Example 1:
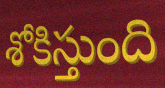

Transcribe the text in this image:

శోకిస్తుంది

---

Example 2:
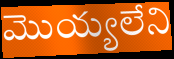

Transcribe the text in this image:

మొయ్యలేని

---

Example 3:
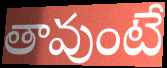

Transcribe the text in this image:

తావుంటే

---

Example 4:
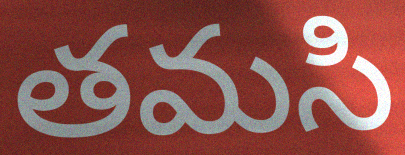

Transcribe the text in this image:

తమసి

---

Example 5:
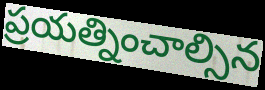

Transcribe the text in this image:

ప్రయత్నించాల్సిన